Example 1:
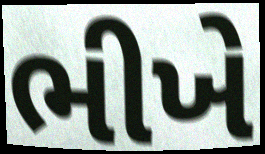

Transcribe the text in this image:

ભીખે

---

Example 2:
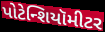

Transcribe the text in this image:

પોટેન્શિયૉમીટર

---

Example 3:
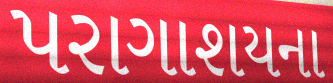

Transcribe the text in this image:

પરાગાશયના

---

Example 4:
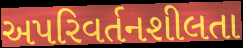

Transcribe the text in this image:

અપરિવર્તનશીલતા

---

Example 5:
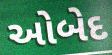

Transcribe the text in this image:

ઓબેદ